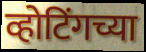
व्होटिंगच्या